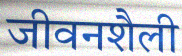
जीवनशैली